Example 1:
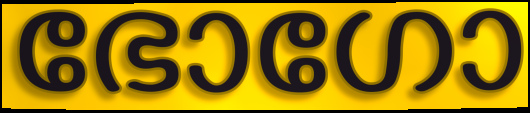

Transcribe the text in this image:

ഭോഗോ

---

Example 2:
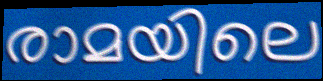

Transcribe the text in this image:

രാമയിലെ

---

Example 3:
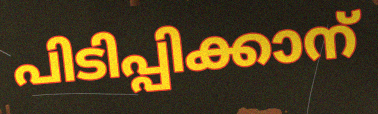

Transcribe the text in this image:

പിടിപ്പിക്കാന്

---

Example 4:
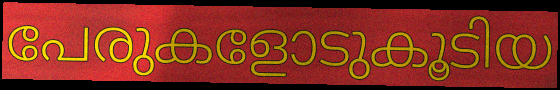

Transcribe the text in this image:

പേരുകളോടുകൂടിയ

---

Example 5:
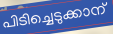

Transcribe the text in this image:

പിടിച്ചെടുക്കാന്